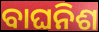
ବାଘନିଶ